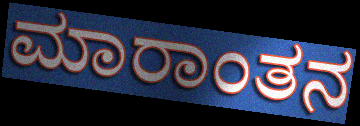
ಮಾರಾಂತನ